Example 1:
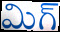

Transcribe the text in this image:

మిగ్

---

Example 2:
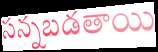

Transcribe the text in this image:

సన్నబడతాయి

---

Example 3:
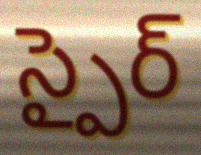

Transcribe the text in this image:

స్పైర్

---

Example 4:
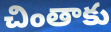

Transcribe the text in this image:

చింతాకు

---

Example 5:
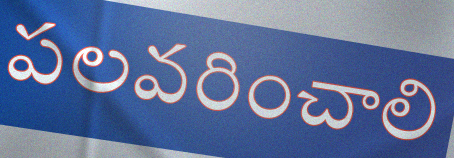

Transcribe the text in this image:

పలవరించాలి